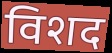
विशद